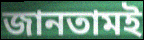
জানতামই